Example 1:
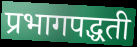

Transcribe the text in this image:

प्रभागपद्धती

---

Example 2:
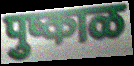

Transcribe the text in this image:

पुष्काळ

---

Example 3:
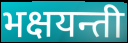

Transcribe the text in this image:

भक्षयन्ती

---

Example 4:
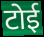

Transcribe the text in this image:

टोई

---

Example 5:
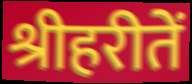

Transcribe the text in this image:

श्रीहरीतें